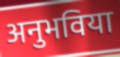
अनुभविया